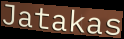
Jatakas